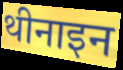
थीनाइन